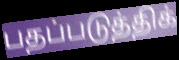
பதப்படுத்திக்